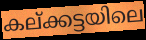
കല്ക്കട്ടയിലെ